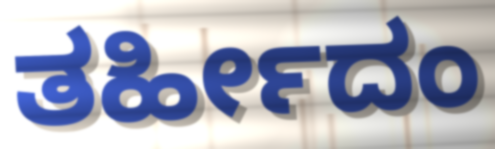
ತರ್ಹೀದಂ